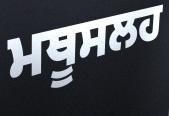
ਮਥੂਸਲਹ